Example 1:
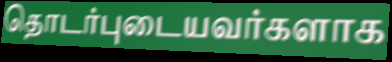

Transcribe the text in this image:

தொடர்புடையவர்களாக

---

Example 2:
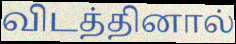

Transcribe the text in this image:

விடத்தினால்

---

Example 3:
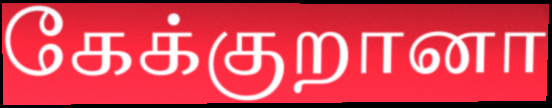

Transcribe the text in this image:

கேக்குறானா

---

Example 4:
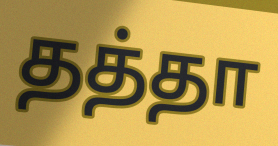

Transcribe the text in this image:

தத்தா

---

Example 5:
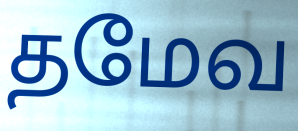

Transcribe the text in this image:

தமேவ